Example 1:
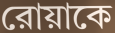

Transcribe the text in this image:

রোয়াকে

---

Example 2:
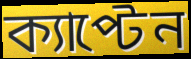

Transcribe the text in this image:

ক্যাপ্টেন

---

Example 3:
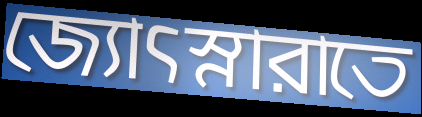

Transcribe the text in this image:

জ্যোৎস্নারাতে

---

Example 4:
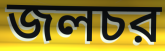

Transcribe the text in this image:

জলচর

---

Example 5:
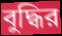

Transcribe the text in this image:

বুদ্ধির